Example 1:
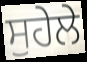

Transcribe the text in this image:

ਸੁਹੇਲੇ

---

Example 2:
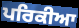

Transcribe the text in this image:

ਪਰਿਕੀਆ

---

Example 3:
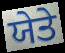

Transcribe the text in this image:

ਯੇਤੇ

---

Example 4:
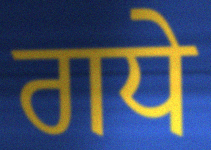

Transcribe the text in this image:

ਗਧੇ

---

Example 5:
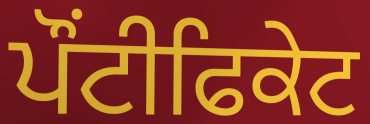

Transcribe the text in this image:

ਪੌਂਟੀਫਿਕੇਟ